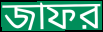
জাফর